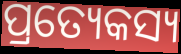
ପ୍ରତ୍ୟେକସ୍ୟ